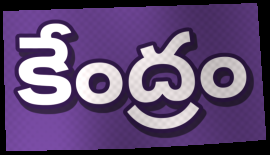
కేంద్రం